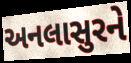
અનલાસુરને